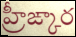
హ్రీఙ్కార